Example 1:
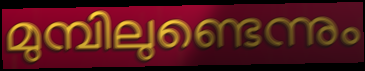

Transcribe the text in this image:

മുമ്പിലുണ്ടെന്നും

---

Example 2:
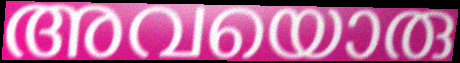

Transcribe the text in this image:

അവയൊരു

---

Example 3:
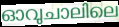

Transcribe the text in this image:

ഓവുചാലിലെ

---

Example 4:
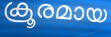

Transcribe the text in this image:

ക്രൂരമായ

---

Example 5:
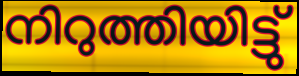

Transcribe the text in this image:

നിറുത്തിയിട്ടു്